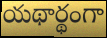
యథార్థంగా